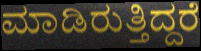
ಮಾಡಿರುತ್ತಿದ್ದರೆ